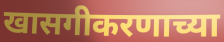
खासगीकरणाच्या